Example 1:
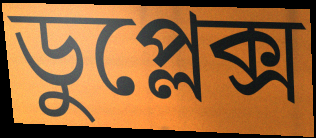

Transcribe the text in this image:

ডুপ্লেক্স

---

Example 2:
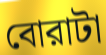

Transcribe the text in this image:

বোরাটা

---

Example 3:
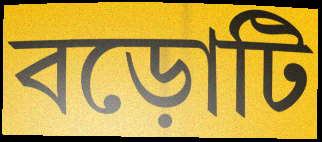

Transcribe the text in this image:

বড়োটি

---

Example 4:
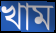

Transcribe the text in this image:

খাম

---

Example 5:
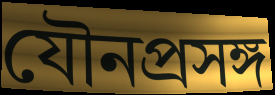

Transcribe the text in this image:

যৌনপ্রসঙ্গ